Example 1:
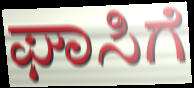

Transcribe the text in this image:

ಘಾಸಿಗೆ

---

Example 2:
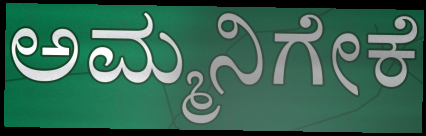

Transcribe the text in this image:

ಅಮ್ಮನಿಗೇಕೆ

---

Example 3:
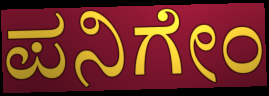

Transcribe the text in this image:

ಪನಿಗೇಂ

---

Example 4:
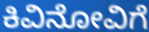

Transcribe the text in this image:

ಕಿವಿನೋವಿಗೆ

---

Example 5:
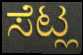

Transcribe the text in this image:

ಸೆಟ್ಲ